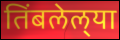
तिंबलेल्या